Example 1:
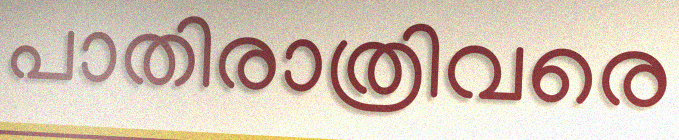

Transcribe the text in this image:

പാതിരാത്രിവരെ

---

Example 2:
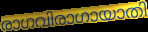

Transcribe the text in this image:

രാഗവിരാഗായാതി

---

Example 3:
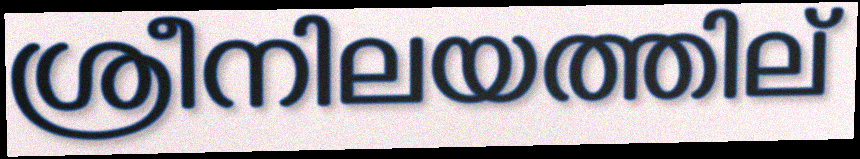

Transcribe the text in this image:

ശ്രീനിലയത്തില്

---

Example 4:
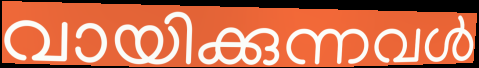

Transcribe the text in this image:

വായിക്കുന്നവൾ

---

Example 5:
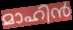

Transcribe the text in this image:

മാഹിൻ